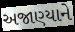
અજાણ્યાને